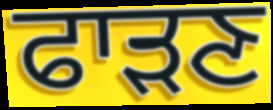
ਫਾੜਣ